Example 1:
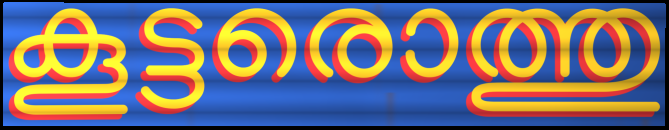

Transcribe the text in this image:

കൂട്ടരൊത്തു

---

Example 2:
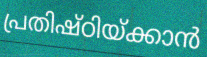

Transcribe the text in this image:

പ്രതിഷ്ഠിയ്ക്കാൻ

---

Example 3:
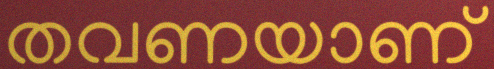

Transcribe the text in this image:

തവണയാണ്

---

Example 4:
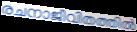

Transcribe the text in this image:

രചനാജീവിതത്തിൽ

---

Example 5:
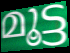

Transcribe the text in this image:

മൂട്ട